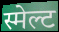
स्मेल्ट